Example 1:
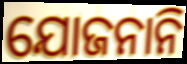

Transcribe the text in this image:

ଯୋଜନାନି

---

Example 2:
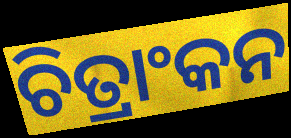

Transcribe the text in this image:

ଚିତ୍ରାଂକନ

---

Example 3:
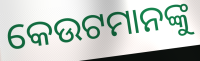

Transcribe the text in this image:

କେଉଟମାନଙ୍କୁ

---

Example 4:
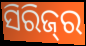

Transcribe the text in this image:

ସିରିଜ୍‌ର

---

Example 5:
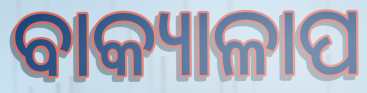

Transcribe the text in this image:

ବାକ୍ୟାଳାପ